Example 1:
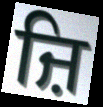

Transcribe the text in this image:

ਜ਼ਿ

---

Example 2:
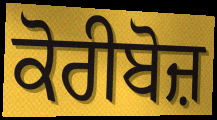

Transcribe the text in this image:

ਕੋਰੀਬੋਜ਼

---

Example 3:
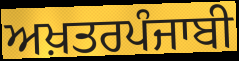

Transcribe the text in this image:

ਅਖ਼ਤਰਪੰਜਾਬੀ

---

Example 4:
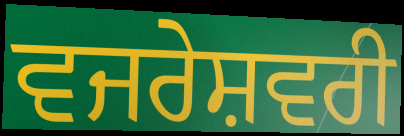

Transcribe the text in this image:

ਵਜਰੇਸ਼ਵਰੀ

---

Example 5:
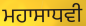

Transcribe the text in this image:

ਮਹਾਸਾਧਵੀ